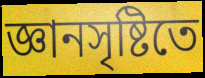
জ্ঞানসৃষ্টিতে